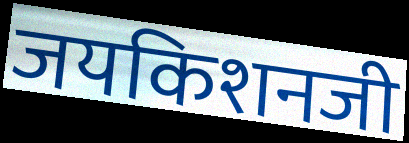
जयकिशनजी